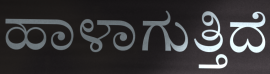
ಹಾಳಾಗುತ್ತಿದೆ